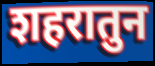
शहरातुन